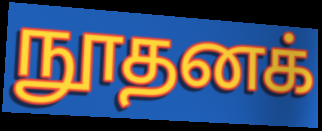
நூதனக்